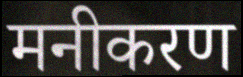
मनीकरण